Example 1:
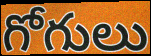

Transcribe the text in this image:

గోగులు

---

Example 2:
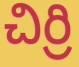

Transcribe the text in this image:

చిర్రి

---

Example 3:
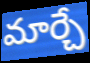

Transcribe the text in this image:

మార్చే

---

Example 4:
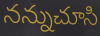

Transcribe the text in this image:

నన్నుచూసి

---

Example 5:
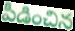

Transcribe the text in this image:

పీడించిన